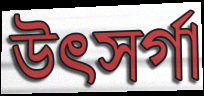
উৎসৰ্গা